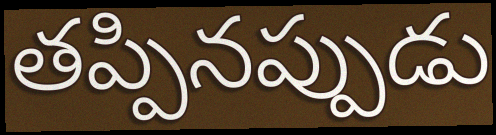
తప్పినప్పుడు